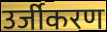
उर्जीकरण